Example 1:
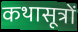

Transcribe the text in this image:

कथासूत्रों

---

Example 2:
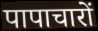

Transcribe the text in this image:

पापाचारों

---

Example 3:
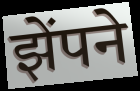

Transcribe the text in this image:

झेंपने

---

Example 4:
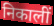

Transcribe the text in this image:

निकालीं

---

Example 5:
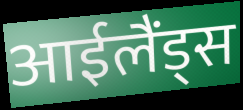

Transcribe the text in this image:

आईलैंड्स